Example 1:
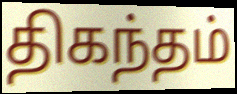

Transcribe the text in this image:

திகந்தம்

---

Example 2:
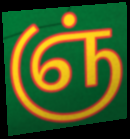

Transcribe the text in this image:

ஞ்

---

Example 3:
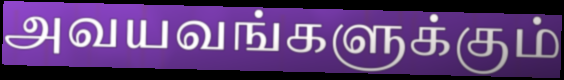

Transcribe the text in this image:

அவயவங்களுக்கும்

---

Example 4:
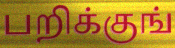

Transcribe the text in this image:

பறிக்குங்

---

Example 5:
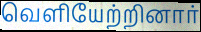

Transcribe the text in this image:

வெளியேற்றினார்